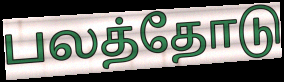
பலத்தோடு